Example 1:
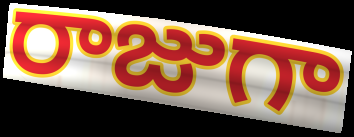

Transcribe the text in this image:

రాజుగా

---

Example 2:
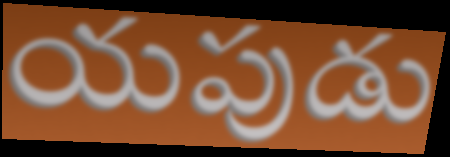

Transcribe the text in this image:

యపుడు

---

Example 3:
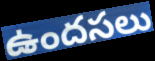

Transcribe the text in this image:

ఉందసలు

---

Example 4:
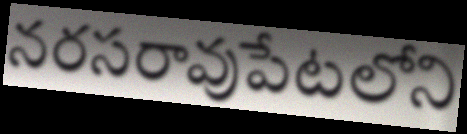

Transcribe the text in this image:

నరసరావుపేటలోని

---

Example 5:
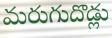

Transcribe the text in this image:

మరుగుదొడ్లు